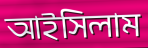
আইসিলাম